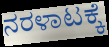
ನರಳಾಟಕ್ಕೆ